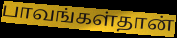
பாவங்கள்தான்